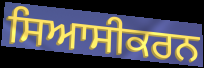
ਸਿਆਸੀਕਰਨ